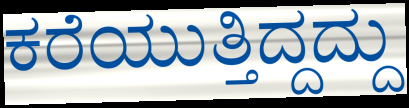
ಕರೆಯುತ್ತಿದ್ದದ್ದು